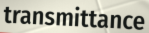
transmittance